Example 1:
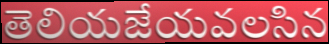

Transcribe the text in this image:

తెలియజేయవలసిన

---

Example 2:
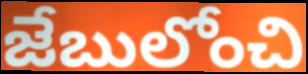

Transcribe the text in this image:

జేబులోంచి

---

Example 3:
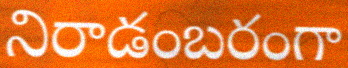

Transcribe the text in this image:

నిరాడంబరంగా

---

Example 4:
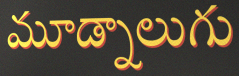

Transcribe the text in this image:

మూడ్నాలుగు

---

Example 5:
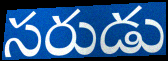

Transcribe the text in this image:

సరుడు